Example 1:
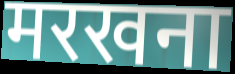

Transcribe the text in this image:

मरखना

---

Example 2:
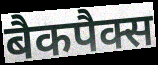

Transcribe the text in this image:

बैकपैक्स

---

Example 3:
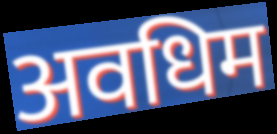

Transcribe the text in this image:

अवधिम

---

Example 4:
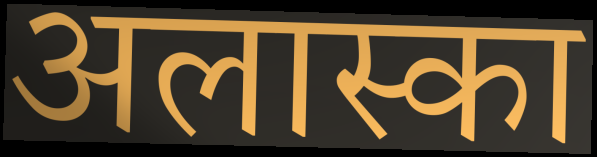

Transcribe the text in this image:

अलास्का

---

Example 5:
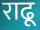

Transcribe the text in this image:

राढू